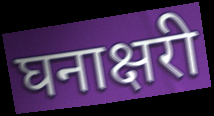
घनाक्षरी